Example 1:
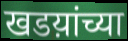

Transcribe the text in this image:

खडय़ांच्या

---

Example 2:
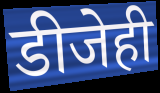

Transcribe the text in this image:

डीजेही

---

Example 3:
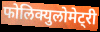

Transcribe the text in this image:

फोलिक्युलोमेट्री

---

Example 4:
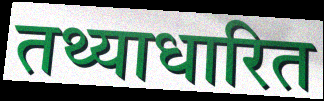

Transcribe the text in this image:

तथ्याधारित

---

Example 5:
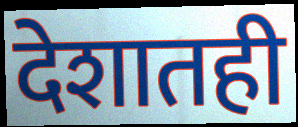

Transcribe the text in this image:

देशातही